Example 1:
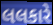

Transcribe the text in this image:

લલકારે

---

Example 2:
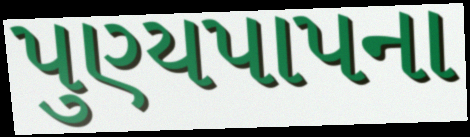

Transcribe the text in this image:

પુણ્યપાપના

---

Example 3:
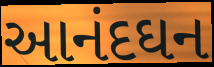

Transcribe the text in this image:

આનંદઘન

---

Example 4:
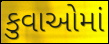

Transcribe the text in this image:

કુવાઓમાં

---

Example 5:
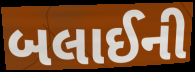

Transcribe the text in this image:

બલાઈની